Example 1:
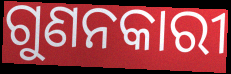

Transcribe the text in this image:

ଗୁଣନକାରୀ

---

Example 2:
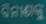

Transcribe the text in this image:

ବିନାଶକୁ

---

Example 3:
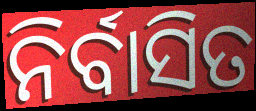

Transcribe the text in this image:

ନିର୍ବାସିତ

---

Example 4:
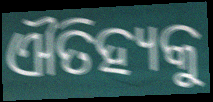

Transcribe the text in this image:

ଐତିହ୍ୟକୁ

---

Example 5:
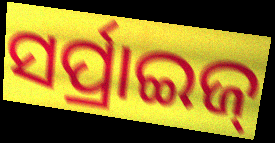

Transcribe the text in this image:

ସର୍ପ୍ରାଇଜ୍